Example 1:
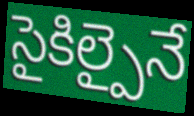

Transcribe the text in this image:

సైకిల్పైనే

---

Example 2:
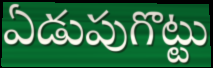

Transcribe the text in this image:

ఏడుపుగొట్టు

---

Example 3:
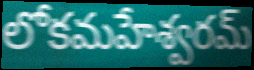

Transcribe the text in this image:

లోకమహేశ్వరమ్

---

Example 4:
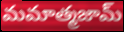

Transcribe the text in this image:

మమాత్మజామ్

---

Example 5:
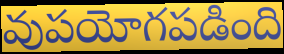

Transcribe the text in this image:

వుపయోగపడింది